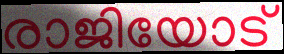
രാജിയോട്